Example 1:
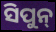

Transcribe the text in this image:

ସିପୁନ୍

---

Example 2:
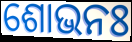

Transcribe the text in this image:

ଶୋଭନଃ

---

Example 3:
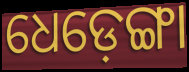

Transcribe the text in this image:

ଧେଡ଼େଙ୍ଗା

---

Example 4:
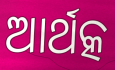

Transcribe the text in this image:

ଆର୍ଥତ୍କ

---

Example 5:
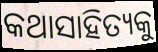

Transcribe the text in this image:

କଥାସାହିତ୍ୟକୁ